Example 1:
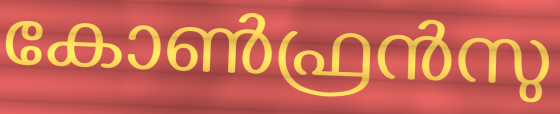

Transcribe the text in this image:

കോൺഫ്രൻസു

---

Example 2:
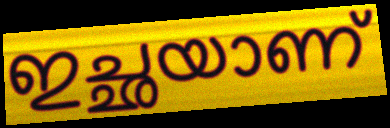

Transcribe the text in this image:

ഇച്ഛയാണ്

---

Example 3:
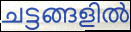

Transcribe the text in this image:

ചട്ടങ്ങളിൽ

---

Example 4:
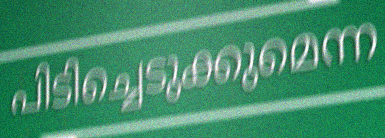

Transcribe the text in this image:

പിടിച്ചെടുക്കുമെന്ന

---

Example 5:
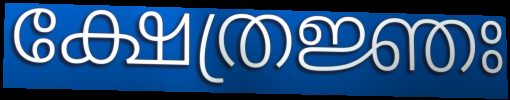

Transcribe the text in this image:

ക്ഷേത്രജ്ഞഃ